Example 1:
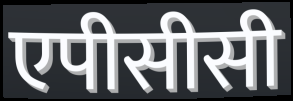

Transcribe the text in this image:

एपीसीसी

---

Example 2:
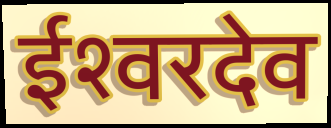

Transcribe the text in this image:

ईश्वरदेव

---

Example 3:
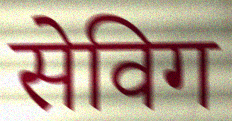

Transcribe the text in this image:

सेविग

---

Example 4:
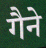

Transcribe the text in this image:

गैने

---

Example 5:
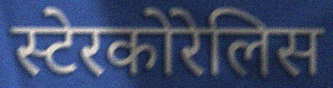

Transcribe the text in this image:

स्टेरकोरेलिस